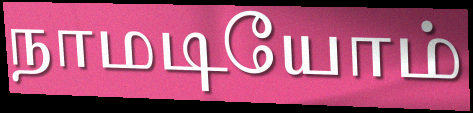
நாமடியோம்